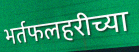
भर्तफलहरीच्या